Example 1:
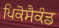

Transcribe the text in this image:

ਪਿਕੋਸੈਕੰਡ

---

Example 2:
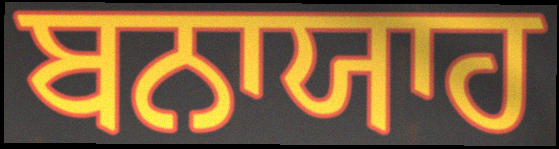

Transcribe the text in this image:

ਬਨਾਯਾਹ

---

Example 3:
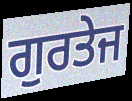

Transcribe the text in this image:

ਗੁਰਤੇਜ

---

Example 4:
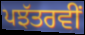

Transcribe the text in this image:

ਪਝੱਤਰਵੀਂ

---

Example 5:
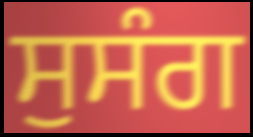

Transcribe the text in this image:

ਸੁਸੰਗ